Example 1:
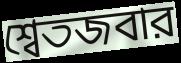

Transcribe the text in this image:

শ্বেতজবার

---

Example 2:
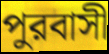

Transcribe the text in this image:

পুরবাসী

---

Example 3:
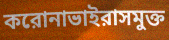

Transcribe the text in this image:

করোনাভাইরাসমুক্ত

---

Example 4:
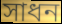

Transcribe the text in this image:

সাধন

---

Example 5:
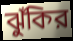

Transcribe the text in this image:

ঝুঁকির